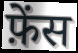
फ़ेंस